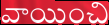
వాయించి